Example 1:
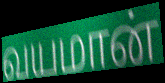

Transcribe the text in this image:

வயமான்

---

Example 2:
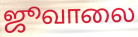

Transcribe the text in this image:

ஜூவாலை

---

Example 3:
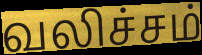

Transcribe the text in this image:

வலிச்சம்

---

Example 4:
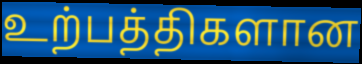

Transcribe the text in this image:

உற்பத்திகளான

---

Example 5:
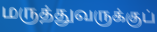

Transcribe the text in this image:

மருத்துவருக்குப்